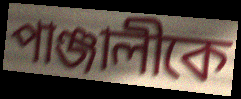
পাঞ্জালীকে